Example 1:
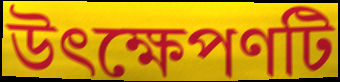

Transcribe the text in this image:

উৎক্ষেপণটি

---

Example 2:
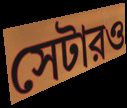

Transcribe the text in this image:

সেটারও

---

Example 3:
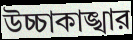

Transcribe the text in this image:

উচ্চাকাঙ্খার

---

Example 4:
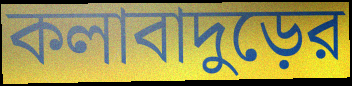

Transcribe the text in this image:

কলাবাদুড়ের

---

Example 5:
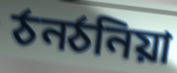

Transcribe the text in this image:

ঠনঠনিয়া